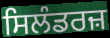
ਸਿਲੰਡਰਜ਼